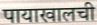
पायाखालची